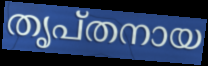
തൃപ്തനായ